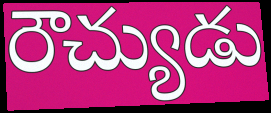
రౌచ్యుడు